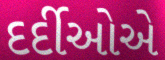
દર્દીઓએ